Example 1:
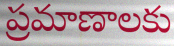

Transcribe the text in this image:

ప్రమాణాలకు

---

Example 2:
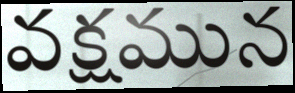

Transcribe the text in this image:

వక్షమున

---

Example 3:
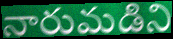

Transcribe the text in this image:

నారుమడిని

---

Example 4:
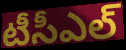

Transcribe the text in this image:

టీసీఎల్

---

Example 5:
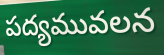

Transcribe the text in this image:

పద్యమువలన